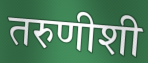
तरुणीशी